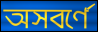
অসবর্ণে